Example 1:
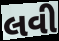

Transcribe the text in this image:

લવી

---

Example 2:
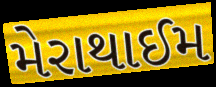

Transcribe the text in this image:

મેરાથાઈમ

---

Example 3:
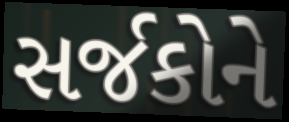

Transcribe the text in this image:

સર્જકોને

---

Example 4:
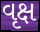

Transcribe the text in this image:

વૃક્ષ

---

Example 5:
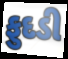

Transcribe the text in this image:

ફુદડી